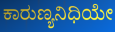
ಕಾರುಣ್ಯನಿಧಿಯೇ